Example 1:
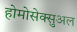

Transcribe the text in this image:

होमोसेक्सुअल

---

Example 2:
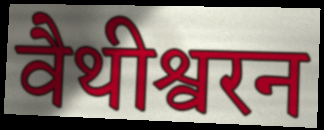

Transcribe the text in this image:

वैथीश्वरन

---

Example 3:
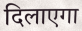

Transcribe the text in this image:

दिलाएगा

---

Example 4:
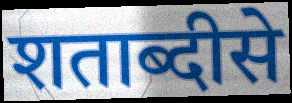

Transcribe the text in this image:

शताब्दीसे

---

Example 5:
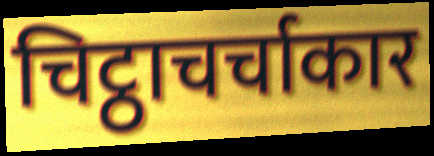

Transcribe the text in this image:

चिट्ठाचर्चाकार